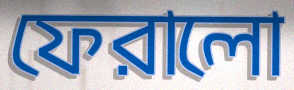
ফেরালো